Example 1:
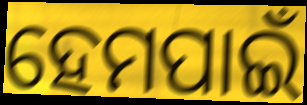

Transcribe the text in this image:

ହେମପାଇଁ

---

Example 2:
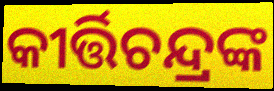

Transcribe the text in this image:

କୀର୍ତ୍ତିଚନ୍ଦ୍ରଙ୍କ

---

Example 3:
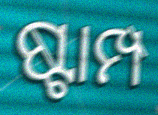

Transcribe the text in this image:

ଷ୍ଟାମ୍ପ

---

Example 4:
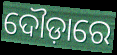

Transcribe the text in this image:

ଦୌଡ଼ାରେ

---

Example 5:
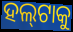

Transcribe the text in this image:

ହଲ୍‌ଟାକୁ